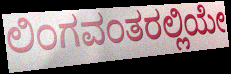
ಲಿಂಗವಂತರಲ್ಲಿಯೇ